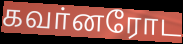
கவர்னரோட